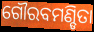
ଗୌରବମଣ୍ଡିତା